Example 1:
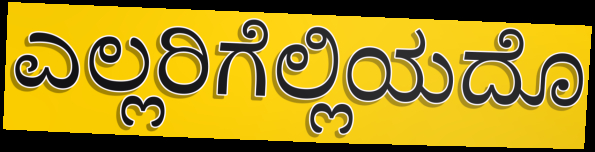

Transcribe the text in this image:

ಎಲ್ಲರಿಗೆಲ್ಲಿಯದೊ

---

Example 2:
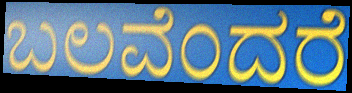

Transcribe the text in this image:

ಬಲವೆಂದರೆ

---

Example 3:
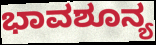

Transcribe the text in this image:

ಭಾವಶೂನ್ಯ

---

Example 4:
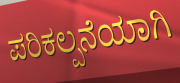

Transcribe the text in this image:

ಪರಿಕಲ್ಪನೆಯಾಗಿ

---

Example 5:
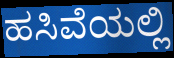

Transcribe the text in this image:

ಹಸಿವೆಯಲ್ಲಿ